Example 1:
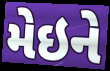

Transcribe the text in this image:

મેઇને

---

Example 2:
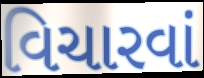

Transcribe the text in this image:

વિચારવાં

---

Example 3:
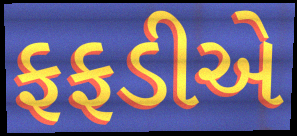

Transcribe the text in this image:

ફફડીએ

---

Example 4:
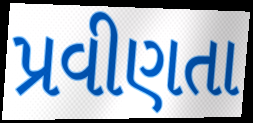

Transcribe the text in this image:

પ્રવીણતા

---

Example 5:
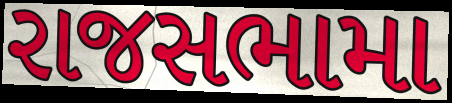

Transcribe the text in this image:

રાજસભામા